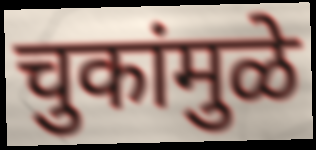
चुकांमुळे